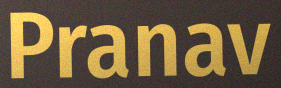
Pranav